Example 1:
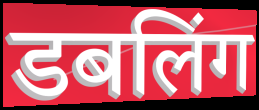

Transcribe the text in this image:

डबलिंग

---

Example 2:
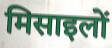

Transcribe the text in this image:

मिसाइलों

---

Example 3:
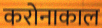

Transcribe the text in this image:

करोनाकाल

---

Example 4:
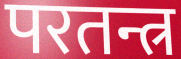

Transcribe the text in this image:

परतन्त्र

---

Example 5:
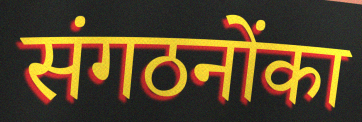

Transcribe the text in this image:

संगठनोंका